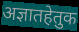
अज्ञातहेतुक